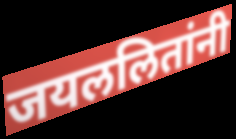
जयललितांनी